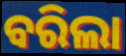
ବରିଲା